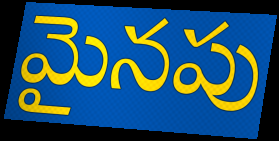
మైనపు